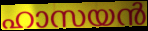
ഹാസയൻ